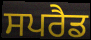
ਸਪਰੈਡ